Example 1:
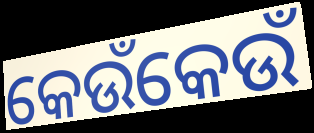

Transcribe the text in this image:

କେଉଁକେଉଁ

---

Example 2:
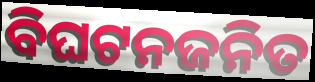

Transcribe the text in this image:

ବିଘଟନଜନିତ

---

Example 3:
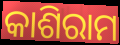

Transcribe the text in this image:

କାଶିରାମ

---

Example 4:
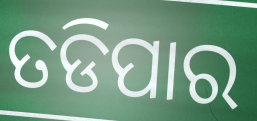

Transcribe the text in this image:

ତଡିପାର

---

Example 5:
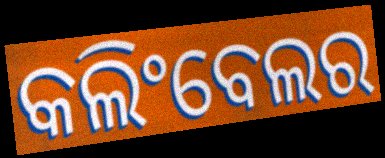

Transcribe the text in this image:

କଲିଂବେଲର